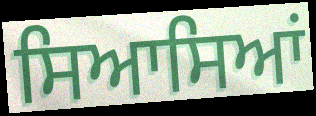
ਸਿਆਸਿਆਂ